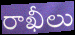
రాఖీలు